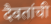
दैवतांची